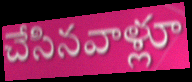
చేసినవాళ్లూ